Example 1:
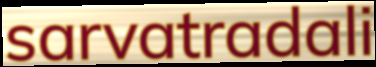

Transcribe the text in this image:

sarvatradali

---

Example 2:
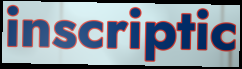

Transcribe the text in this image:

inscriptic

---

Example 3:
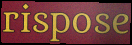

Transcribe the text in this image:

rispose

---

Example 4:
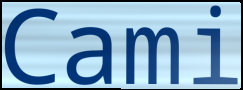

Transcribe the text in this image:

Cami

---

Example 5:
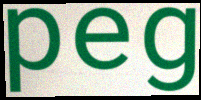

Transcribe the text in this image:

peg